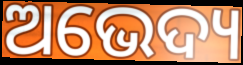
ଅଭେଦ୍ୟ